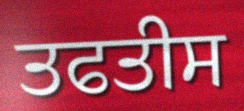
ਤਫਤੀਸ